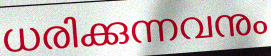
ധരിക്കുന്നവനും